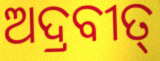
ଅଦ୍ରବୀତ୍